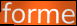
forme